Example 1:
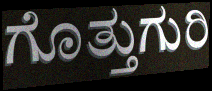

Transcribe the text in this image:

ಗೊತ್ತುಗುರಿ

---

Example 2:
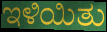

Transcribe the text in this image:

ಇಳಿಯಿತು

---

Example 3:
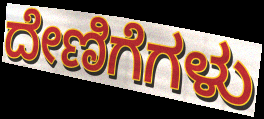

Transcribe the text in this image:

ದೇಣಿಗೆಗಳು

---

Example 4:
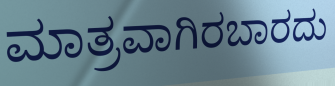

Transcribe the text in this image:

ಮಾತ್ರವಾಗಿರಬಾರದು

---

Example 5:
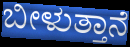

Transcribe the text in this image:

ಬೀಳುತ್ತಾನೆ